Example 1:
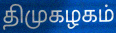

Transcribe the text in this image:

திமுகழகம்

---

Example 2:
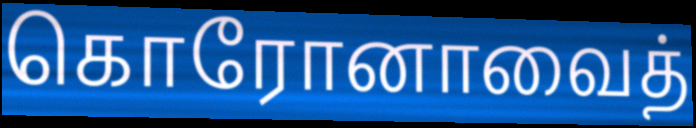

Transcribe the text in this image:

கொரோனாவைத்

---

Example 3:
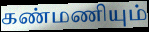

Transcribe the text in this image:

கண்மணியும்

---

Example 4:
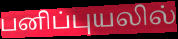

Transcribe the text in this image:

பனிப்புயலில்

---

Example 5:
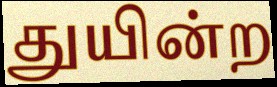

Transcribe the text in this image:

துயின்ற